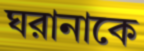
ঘরানাকে